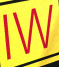
IW